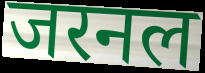
जरनल